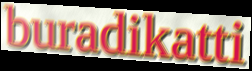
buradikatti